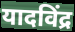
यादविंद्र